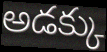
అడక్కు